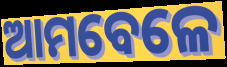
ଆମବେଳେ